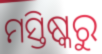
ମସ୍ତିଷ୍କରୁ